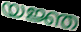
യജ്ഞ